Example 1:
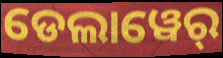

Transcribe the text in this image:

ଡେଲାୱେର୍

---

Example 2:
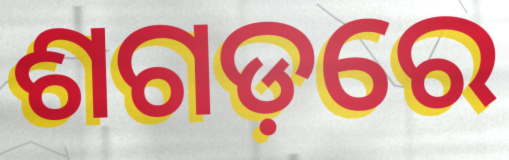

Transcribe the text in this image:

ଶଗଡ଼ରେ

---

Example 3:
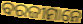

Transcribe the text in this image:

ବରଜୀମାନେ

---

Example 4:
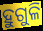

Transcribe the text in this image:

ହୁଗୁଳି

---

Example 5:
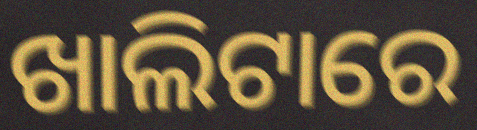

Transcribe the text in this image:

ଖାଲିଟାରେ